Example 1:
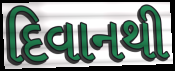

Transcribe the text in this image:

દિવાનથી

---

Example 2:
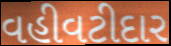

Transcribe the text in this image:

વહીવટીદાર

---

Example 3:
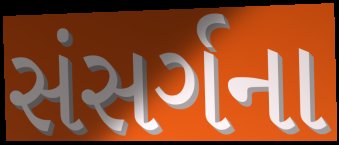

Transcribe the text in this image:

સંસર્ગના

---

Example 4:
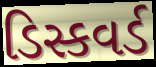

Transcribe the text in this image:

ડિસ્કવર્ડ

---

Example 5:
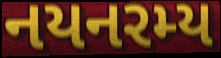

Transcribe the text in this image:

નયનરમ્ય